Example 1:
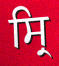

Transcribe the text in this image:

ਸ੍ਰਿ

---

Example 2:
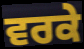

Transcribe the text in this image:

ਵਰਕੇ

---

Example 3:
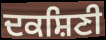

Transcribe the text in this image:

ਦਕਸ਼ਿਣੀ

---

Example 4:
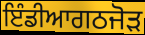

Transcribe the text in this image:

ਇੰਡੀਆਗਠਜੋੜ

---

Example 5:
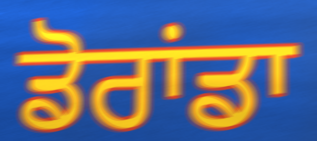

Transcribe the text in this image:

ਡੋਰਾਂਡਾ